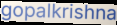
gopalkrishna